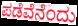
ಪಡೆವೆನೆಂದು